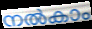
നൽകാം